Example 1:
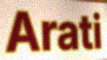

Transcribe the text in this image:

Arati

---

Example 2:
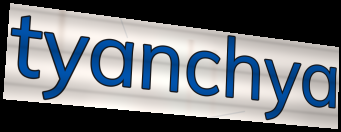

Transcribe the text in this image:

tyanchya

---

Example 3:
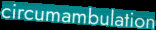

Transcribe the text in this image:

circumambulation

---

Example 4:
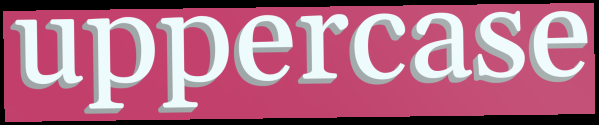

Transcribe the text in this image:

uppercase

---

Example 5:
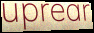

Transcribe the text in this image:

uprear